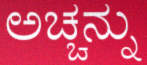
ಅಚ್ಚನ್ನು